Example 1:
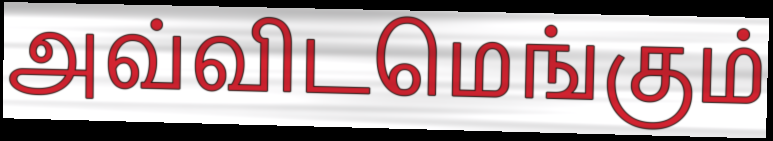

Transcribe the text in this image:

அவ்விடமெங்கும்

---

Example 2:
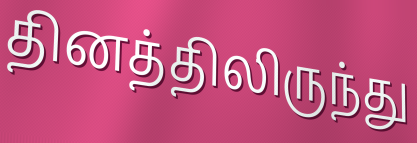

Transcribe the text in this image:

தினத்திலிருந்து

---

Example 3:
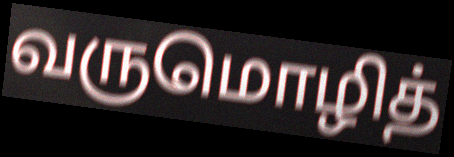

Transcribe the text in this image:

வருமொழித்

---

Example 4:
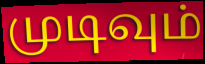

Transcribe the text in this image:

முடிவும்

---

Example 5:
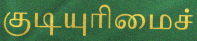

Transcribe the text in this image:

குடியுரிமைச்